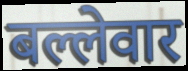
बल्लेवार